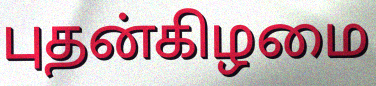
புதன்கிழமை